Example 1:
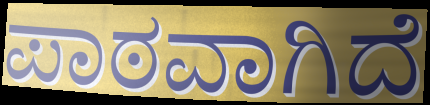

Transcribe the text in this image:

ಪಾಠವಾಗಿದೆ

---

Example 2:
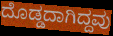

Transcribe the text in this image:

ದೊಡ್ಡದಾಗಿದ್ದವು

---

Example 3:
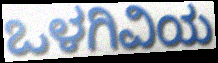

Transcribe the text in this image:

ಒಳಗಿವಿಯ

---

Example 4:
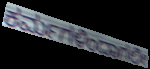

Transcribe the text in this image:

ಕರ್ಮಗಳಿಂದಾಗಲೀ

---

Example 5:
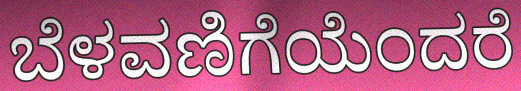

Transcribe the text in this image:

ಬೆಳವಣಿಗೆಯೆಂದರೆ